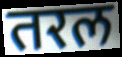
तरल